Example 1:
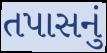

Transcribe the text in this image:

તપાસનું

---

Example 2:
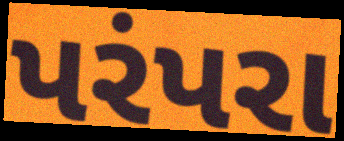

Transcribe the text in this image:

પરંપરા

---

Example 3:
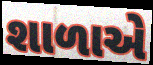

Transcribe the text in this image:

શાળાએે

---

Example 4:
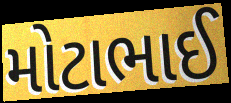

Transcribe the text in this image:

મોટાભાઈ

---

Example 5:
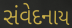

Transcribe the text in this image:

સંવેદનાય